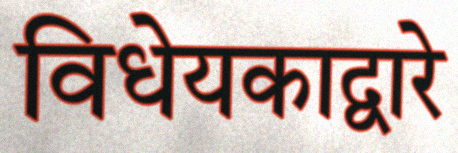
विधेयकाद्वारे